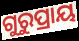
ଗୁରୁପ୍ରାୟ